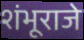
शंभूराजे